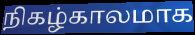
நிகழ்காலமாக